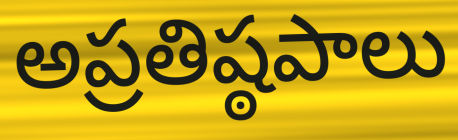
అప్రతిష్ఠపాలు